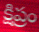
క్షిప్రం